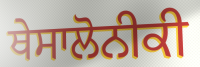
ਥੇਸਾਲੋਨੀਕੀ